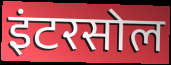
इंटरसोल